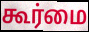
கூர்மை